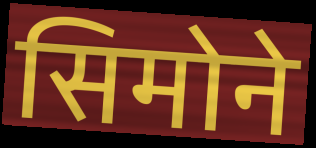
सिमोने